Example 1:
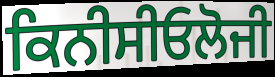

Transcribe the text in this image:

ਕਿਨੀਸੀਓਲੋਜੀ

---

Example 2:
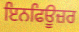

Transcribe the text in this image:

ਇਨਫਿਊਜ਼ਰ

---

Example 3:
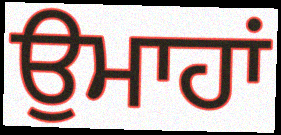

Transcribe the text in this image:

ਉਮਾਹਾਂ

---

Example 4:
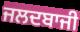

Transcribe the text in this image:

ਜਲਦਬਾਜੀ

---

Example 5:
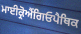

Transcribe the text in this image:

ਮਾਈਕ੍ਰੋਐਂਗਿਓਪੈਥਿਕ